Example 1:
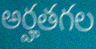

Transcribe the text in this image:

అర్హతగల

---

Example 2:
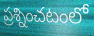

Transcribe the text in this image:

ప్రశ్నించటంలో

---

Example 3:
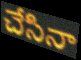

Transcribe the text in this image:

చేసినా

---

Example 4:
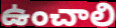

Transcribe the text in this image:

ఉంచాలి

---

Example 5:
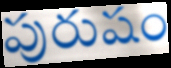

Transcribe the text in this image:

పురుషం